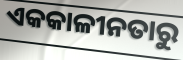
ଏକକାଳୀନତାରୁ